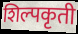
शिल्पकृती